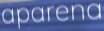
aparena